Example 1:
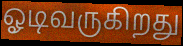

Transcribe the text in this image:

ஓடிவருகிறது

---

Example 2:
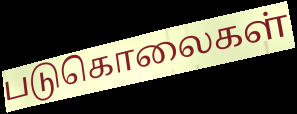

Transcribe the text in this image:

படுகொலைகள்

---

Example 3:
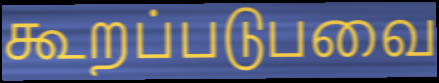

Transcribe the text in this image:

கூறப்படுபவை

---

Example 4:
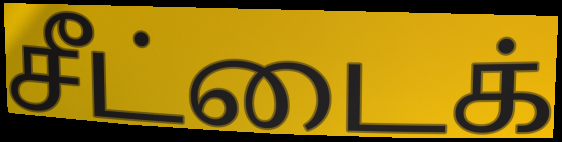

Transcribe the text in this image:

சீட்டைக்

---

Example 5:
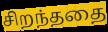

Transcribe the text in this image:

சிறந்ததை